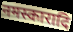
नमस्कारादि